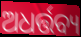
ଅଧର୍ତ୍ତବ୍ୟ